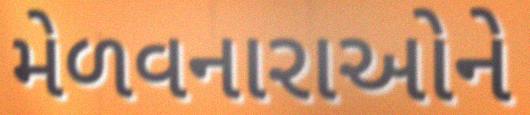
મેળવનારાઓને